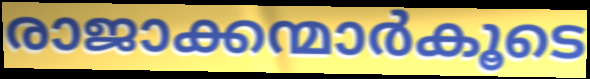
രാജാക്കന്മാർകൂടെ